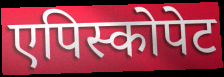
एपिस्कोपेट